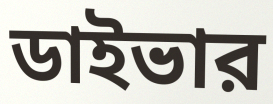
ডাইভার